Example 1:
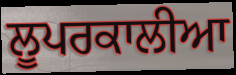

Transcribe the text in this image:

ਲੂਪਰਕਾਲੀਆ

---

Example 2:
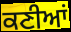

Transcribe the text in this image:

ਕਣੀਆਂ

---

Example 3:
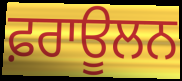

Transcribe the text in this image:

ਫ਼ਰਾਊਲਨ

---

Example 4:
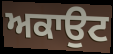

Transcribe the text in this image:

ਅਕਾਉਟ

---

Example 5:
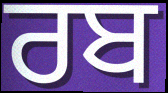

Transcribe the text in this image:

ਰਬ